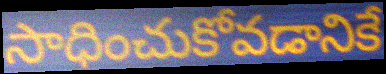
సాధించుకోవడానికే